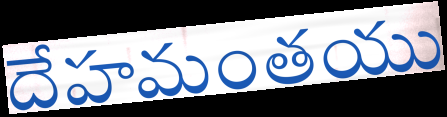
దేహమంతయు